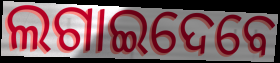
ଲଗାଇଦେବେ